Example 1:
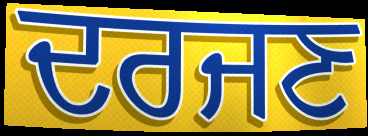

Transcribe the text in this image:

ਦਰਜਣ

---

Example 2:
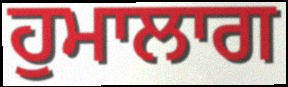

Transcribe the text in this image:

ਹੁਮਾਲਾਗ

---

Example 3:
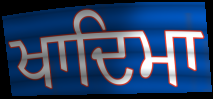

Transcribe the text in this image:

ਖਾਦਿਮਾ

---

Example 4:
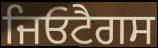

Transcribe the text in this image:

ਜਿਓਟੈਗਸ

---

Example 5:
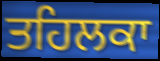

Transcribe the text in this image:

ਤਹਿਲਕਾ